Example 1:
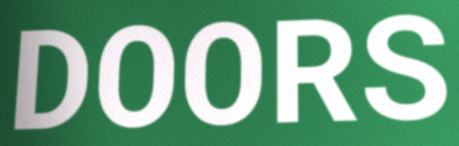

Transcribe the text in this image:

DOORS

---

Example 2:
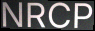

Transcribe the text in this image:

NRCP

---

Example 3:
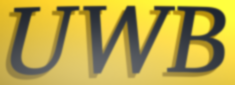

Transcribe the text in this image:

UWB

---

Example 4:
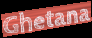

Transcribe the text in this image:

Ghetana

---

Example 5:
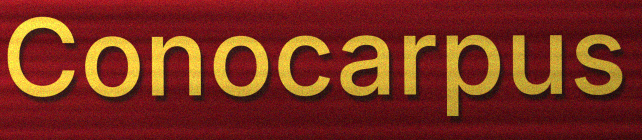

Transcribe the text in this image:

Conocarpus